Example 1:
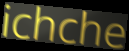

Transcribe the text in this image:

ichche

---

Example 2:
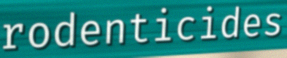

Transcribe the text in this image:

rodenticides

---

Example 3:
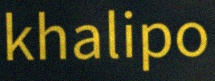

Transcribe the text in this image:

khalipo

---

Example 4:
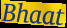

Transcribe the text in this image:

Bhaat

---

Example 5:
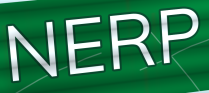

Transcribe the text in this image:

NERP